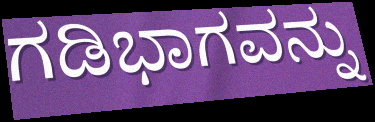
ಗಡಿಭಾಗವನ್ನು